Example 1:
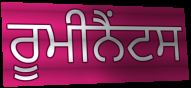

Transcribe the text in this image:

ਰੂਮੀਨੈਂਟਸ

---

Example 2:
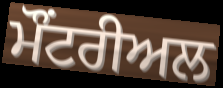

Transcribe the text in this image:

ਮੌਂਟਰੀਅਲ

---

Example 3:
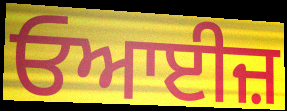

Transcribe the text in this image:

ਓਆਈਜ਼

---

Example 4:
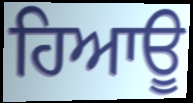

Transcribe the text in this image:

ਹਿਆਊ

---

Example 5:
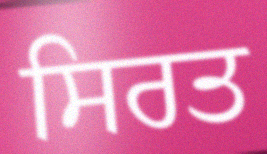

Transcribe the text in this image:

ਸਿਰਤ